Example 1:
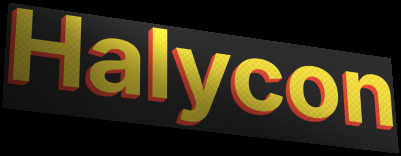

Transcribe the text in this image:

Halycon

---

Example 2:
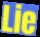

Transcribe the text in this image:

Lie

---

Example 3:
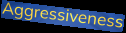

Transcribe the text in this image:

Aggressiveness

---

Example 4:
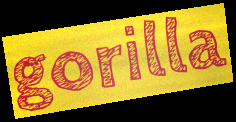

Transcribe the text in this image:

gorilla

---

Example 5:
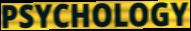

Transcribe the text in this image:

PSYCHOLOGY